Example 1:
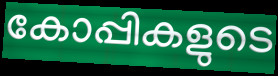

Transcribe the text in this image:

കോപ്പികളുടെ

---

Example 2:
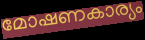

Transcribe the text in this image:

മോഷണകാര്യം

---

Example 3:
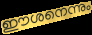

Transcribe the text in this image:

ഈശനെന്നും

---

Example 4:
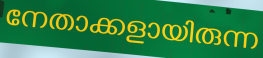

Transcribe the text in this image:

നേതാക്കളായിരുന്ന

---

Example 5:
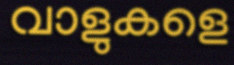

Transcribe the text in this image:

വാളുകളെ